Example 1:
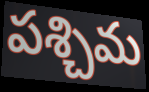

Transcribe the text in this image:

పశ్చిమ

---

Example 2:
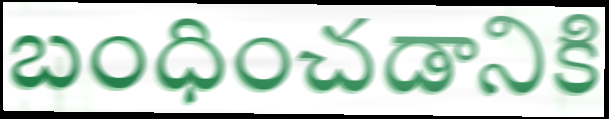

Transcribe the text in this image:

బంధించడానికి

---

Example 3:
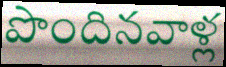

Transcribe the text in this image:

పొందినవాళ్ల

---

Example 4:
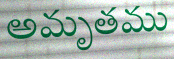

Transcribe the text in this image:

అమృతము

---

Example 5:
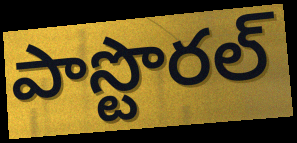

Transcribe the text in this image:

పాస్టొరల్